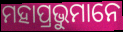
ମହାପ୍ରଭୁମାନେ